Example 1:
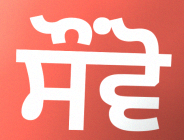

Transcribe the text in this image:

ਸੌਂਵੋ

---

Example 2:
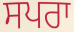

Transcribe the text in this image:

ਸਪਰਾ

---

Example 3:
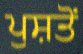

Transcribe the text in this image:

ਪੁਸ਼ਤੋਂ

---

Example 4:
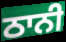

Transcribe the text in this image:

ਠਾਨੀ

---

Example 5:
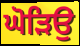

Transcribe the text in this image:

ਘੋੜਿਉ